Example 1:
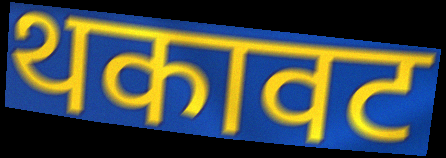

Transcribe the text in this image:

थकावट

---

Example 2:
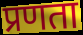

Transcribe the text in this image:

प्रणता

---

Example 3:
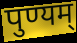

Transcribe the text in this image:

पुण्यम्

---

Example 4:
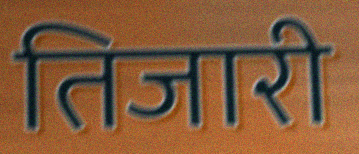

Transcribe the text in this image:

तिजारी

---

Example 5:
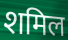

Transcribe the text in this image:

शमिल